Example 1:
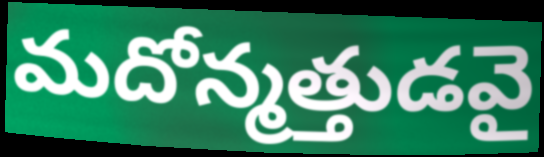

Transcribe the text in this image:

మదోన్మత్తుడవై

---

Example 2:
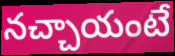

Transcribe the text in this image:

నచ్చాయంటే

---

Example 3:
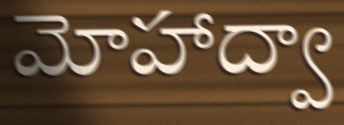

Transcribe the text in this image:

మోహాద్వా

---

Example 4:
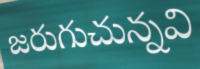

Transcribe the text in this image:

జరుగుచున్నవి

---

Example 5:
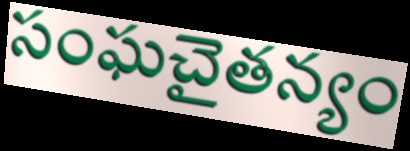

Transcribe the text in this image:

సంఘచైతన్యం